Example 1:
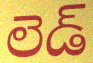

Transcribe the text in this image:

లెడ్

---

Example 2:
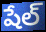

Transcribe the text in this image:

షేల్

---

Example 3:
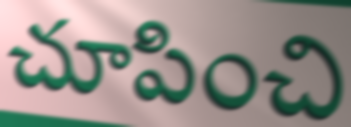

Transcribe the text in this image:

చూపించి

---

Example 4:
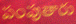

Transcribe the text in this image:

పంపుతారు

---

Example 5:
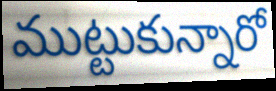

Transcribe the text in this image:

ముట్టుకున్నారో